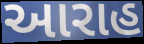
આરાહ